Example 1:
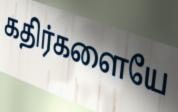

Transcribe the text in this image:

கதிர்களையே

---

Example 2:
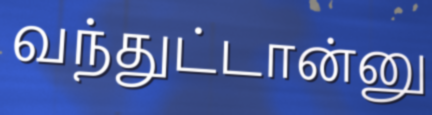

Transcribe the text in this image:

வந்துட்டான்னு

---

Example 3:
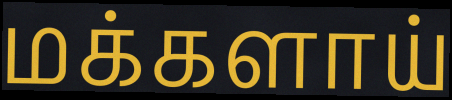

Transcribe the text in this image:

மக்களாய்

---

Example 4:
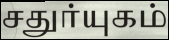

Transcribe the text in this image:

சதுர்யுகம்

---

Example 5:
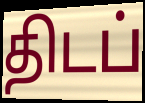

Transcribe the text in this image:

திடப்